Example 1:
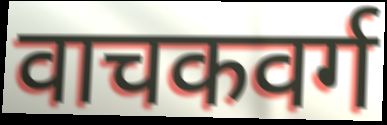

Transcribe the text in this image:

वाचकवर्ग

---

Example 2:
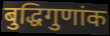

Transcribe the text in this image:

बुद्धिगुणांक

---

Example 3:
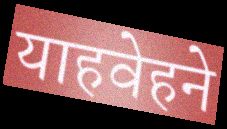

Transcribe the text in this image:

याहवेहने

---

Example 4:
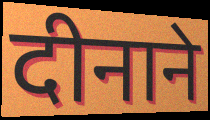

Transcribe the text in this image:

दीनाने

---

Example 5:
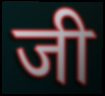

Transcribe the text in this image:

जी